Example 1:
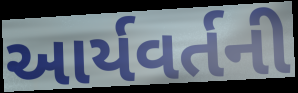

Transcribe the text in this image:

આર્યવર્તની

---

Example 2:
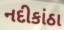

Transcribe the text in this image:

નદીકાંઠા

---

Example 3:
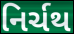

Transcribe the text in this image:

નિર્ચથ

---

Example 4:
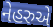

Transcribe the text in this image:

નેહરુએ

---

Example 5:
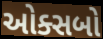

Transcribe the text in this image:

ઓક્સબો